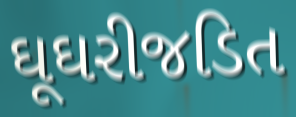
ઘૂઘરીજડિત